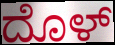
ದೊಳ್